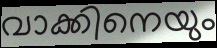
വാക്കിനെയും